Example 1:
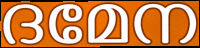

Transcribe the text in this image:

ദമേന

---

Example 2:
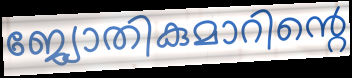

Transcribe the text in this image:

ജ്യോതികുമാറിന്റെ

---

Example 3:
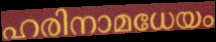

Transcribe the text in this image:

ഹരിനാമധേയം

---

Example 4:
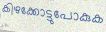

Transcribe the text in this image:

കിഴക്കോട്ടുപോകുക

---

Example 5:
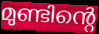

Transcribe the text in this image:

മുണ്ടിന്റെ